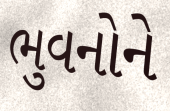
ભુવનોને